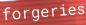
forgeries